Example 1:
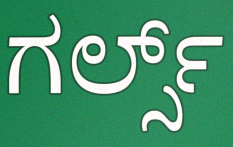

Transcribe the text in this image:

ಗರ್ಲ್ಸ್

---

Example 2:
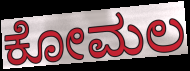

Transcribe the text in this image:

ಕೋಮಲ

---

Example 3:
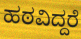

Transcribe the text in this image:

ಹಠವಿದ್ದರೆ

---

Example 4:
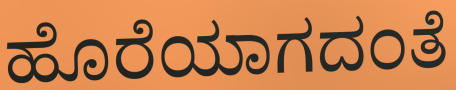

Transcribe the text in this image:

ಹೊರೆಯಾಗದಂತೆ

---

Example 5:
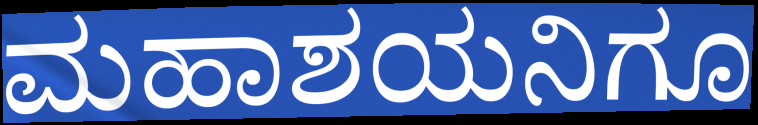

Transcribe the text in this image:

ಮಹಾಶಯನಿಗೂ